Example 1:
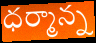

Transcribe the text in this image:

ధర్మాన్న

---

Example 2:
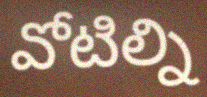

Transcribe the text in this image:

వోటిల్ని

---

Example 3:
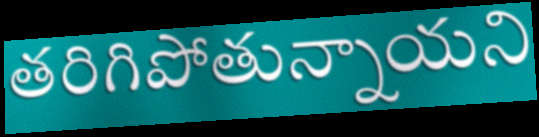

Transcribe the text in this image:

తరిగిపోతున్నాయని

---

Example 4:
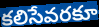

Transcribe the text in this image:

కలిసేవరకూ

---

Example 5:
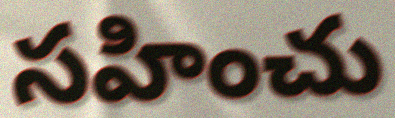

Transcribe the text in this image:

సహించు